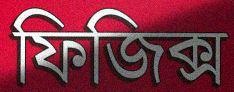
ফিজিক্স